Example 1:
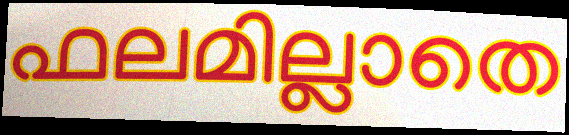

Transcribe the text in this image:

ഫലമില്ലാതെ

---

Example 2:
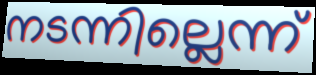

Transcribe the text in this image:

നടന്നില്ലെന്ന്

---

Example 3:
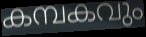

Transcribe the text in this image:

കമ്പകവും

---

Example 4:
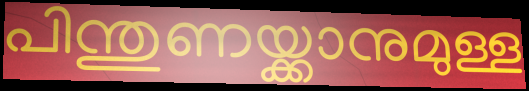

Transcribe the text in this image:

പിന്തുണയ്ക്കാനുമുള്ള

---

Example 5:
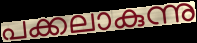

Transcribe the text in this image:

പക്കലാകുന്നു